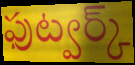
ఫుట్వర్క్